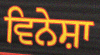
ਵਿਨੇਸ਼ਾ